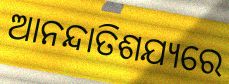
ଆନନ୍ଦାତିଶଯ୍ୟରେ